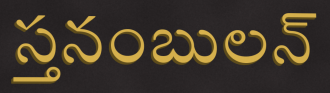
స్తనంబులన్